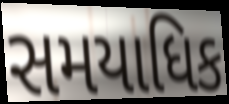
સમયાધિક